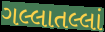
ગલ્લાતલ્લાં